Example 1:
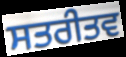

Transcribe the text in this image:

ਸਤਰੀਤਵ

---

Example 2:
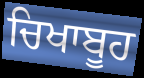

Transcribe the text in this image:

ਚਿਖਾਬੂਹ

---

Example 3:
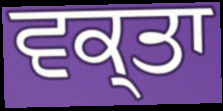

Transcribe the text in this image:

ਵਕ੍ਤਾ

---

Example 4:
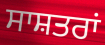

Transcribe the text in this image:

ਸਾਸ਼ਤਰਾਂ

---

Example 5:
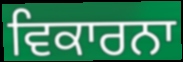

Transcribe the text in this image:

ਵਿਕਾਰਨਾ